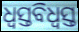
ଧ୍ୱସ୍ତବିଧ୍ୱସ୍ତ